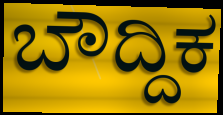
ಬೌದ್ದಿಕ